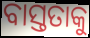
ବାସ୍ତତାକୁ